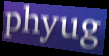
phyug